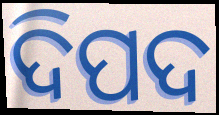
ଦିପଦ